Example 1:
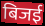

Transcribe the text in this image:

बिजई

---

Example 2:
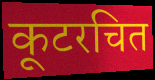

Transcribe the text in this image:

कूटरचित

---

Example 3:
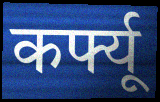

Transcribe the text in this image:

कर्फ्यू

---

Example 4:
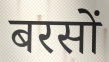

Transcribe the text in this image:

बरसों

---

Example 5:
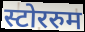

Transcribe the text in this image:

स्टोररुम